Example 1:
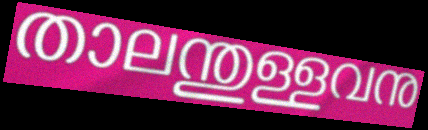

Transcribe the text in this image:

താലന്തുള്ളവനു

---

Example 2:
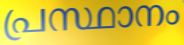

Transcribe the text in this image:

പ്രസ്ഥാനം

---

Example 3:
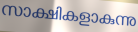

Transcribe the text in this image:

സാക്ഷികളാകുന്നു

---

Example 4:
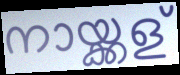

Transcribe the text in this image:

നായ്ക്കള്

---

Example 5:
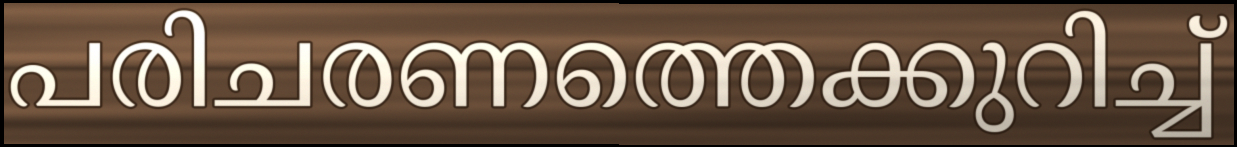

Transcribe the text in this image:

പരിചരണത്തെക്കുറിച്ച്